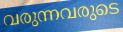
വരുന്നവരുടെ